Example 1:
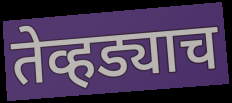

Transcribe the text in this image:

तेव्हड्याच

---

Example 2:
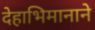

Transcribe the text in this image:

देहाभिमानाने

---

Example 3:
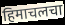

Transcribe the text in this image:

हिमाचलचा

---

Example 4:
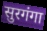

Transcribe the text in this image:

सुरगंगा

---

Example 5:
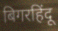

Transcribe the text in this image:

बिगरहिंदू